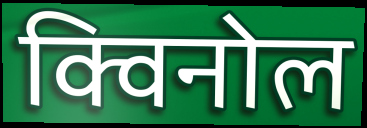
क्विनोल